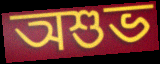
অশুভ